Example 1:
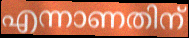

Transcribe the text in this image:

എന്നാണതിന്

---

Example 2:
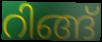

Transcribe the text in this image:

റിങ്ങ്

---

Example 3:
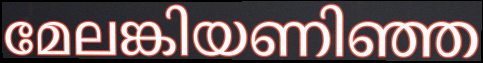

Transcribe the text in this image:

മേലങ്കിയണിഞ്ഞ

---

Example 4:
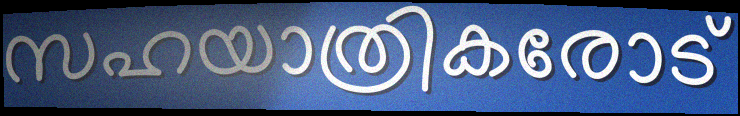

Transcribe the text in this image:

സഹയാത്രികരോട്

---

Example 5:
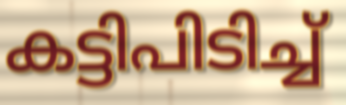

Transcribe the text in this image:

കട്ടിപിടിച്ച്